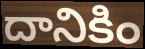
దానికిం